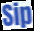
Sip